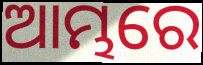
ଆମ୍ଭରେ